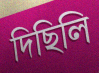
দিছিলি